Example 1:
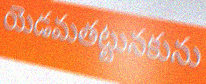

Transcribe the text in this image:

యెడమతట్టునకును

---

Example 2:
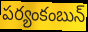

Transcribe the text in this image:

పర్యంకంబున్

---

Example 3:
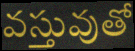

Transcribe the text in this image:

వస్తువుతో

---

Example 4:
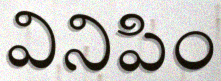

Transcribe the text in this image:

వినిపిం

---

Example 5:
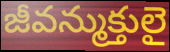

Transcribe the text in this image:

జీవన్ముక్తులై